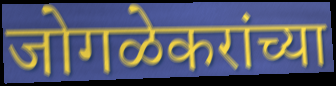
जोगळेकरांच्या